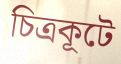
চিত্রকূটে